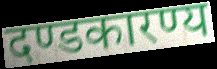
दण्डकारण्य